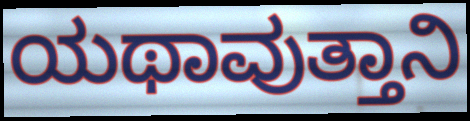
ಯಥಾವುತ್ತಾನಿ